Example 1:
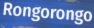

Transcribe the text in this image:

Rongorongo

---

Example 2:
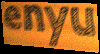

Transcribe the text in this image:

enyu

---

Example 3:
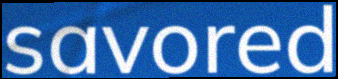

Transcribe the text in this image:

savored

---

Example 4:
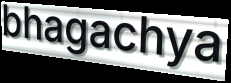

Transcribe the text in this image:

bhagachya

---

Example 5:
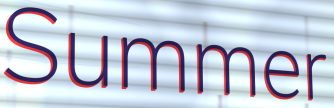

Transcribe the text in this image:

Summer